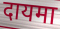
दायमा